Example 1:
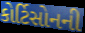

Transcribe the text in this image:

કોર્ટિસોનની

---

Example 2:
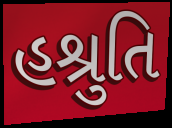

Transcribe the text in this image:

હશ્રુતિ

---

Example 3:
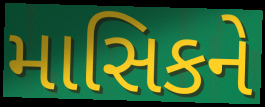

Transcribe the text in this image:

માસિકને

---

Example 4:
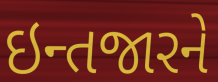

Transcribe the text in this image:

ઇન્તજારને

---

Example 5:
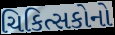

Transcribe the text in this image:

ચિકિત્સકોનો